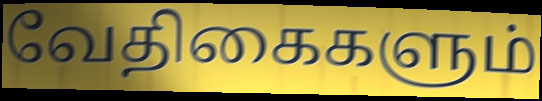
வேதிகைகளும்